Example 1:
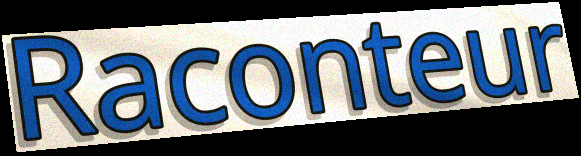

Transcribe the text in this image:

Raconteur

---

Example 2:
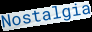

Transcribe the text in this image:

Nostalgia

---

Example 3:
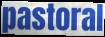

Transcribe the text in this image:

pastoral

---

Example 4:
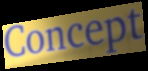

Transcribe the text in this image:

Concept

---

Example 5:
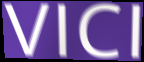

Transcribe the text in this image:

VICI